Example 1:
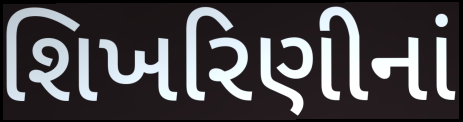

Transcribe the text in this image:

શિખરિણીનાં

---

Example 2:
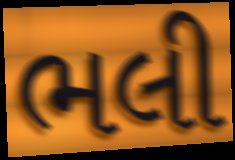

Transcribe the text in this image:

ભલી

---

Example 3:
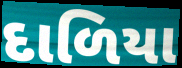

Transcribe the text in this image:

દાળિયા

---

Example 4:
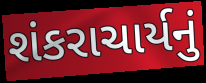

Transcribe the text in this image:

શંકરાચાર્યનું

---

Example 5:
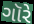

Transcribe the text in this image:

ગૉરે